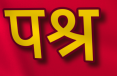
पश्र